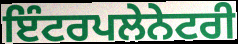
ਇੰਟਰਪਲੇਨੇਟਰੀ